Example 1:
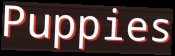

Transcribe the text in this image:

Puppies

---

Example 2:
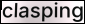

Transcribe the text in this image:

clasping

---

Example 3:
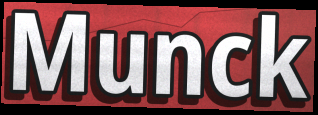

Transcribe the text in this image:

Munck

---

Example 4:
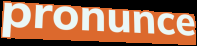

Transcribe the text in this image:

pronunce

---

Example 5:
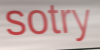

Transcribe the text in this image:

sotry